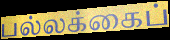
பல்லக்கைப்